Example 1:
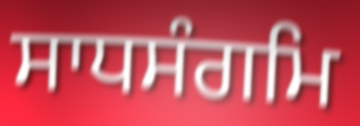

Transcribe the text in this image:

ਸਾਧਸੰਗਮਿ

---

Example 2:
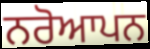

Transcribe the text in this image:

ਨਰੋਆਪਨ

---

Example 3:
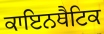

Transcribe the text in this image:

ਕਾਇਨਥੈਟਿਕ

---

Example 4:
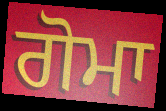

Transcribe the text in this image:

ਗੋਮਾ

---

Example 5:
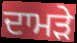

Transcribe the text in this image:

ਦਾਮੜੇ